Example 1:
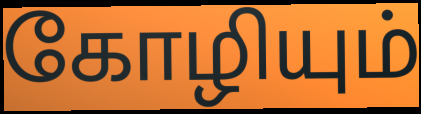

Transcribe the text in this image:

கோழியும்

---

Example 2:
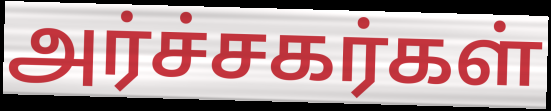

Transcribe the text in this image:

அர்ச்சகர்கள்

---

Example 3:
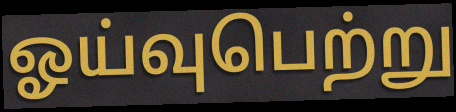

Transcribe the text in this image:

ஓய்வுபெற்று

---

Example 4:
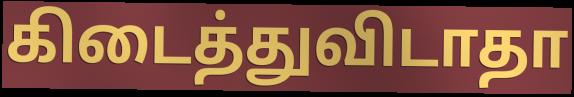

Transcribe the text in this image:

கிடைத்துவிடாதா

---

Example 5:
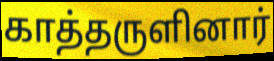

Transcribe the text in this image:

காத்தருளினார்